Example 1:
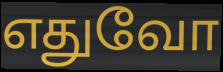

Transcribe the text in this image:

எதுவோ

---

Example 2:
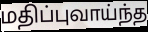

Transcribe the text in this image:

மதிப்புவாய்ந்த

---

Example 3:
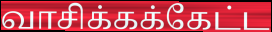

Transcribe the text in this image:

வாசிக்கக்கேட்ட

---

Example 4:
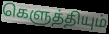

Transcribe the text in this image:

கெளுத்தியும்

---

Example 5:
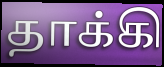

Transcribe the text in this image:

தாக்கி